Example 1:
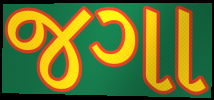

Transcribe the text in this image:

જગા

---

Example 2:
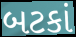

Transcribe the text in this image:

બટકાં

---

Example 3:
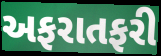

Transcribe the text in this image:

અફરાતફરી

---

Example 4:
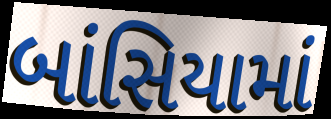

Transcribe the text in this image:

બાંસિયામાં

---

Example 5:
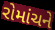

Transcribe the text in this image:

રોમાંચને